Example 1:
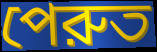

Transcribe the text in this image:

পেরুত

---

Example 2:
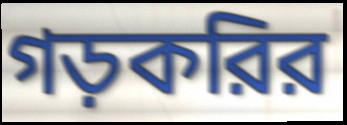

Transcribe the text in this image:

গড়করির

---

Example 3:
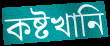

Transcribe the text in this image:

কষ্টখানি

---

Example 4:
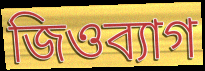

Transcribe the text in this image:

জিওব্যাগ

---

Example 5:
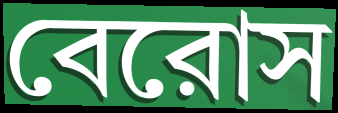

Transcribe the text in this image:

বেরোস